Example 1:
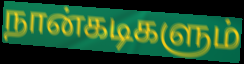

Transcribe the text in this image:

நான்கடிகளும்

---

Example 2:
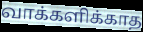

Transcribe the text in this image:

வாக்களிக்காத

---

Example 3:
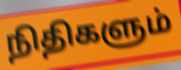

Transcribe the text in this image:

நிதிகளும்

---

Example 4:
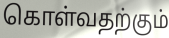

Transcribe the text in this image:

கொள்வதற்கும்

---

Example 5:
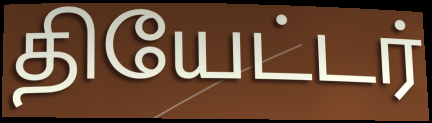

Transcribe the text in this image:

தியேட்டர்